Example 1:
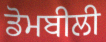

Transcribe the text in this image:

ਡੋਮਬੀਲੀ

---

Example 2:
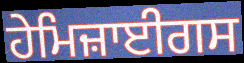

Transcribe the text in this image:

ਹੇਮਿਜ਼ਾਈਗਸ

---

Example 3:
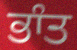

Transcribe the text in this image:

ਭਾੰਤ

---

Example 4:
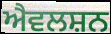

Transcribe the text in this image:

ਐਵਲਸ਼ਨ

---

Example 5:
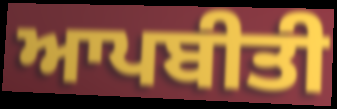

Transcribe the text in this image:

ਆਪਬੀਤੀ